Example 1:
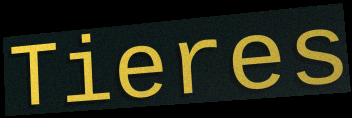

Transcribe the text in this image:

Tieres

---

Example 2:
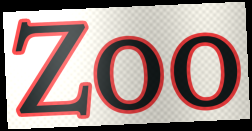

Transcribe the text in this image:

Zoo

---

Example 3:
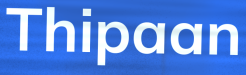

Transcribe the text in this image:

Thipaan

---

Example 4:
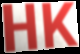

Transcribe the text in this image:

HK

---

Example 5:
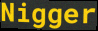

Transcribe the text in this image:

Nigger